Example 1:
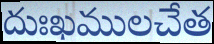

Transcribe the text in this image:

దుఃఖములచేత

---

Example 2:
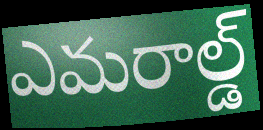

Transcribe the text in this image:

ఎమరాల్డ్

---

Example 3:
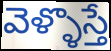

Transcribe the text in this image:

వెళ్ళొస్తే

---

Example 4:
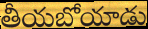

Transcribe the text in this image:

తీయబోయాడు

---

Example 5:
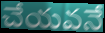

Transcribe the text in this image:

చేయవనే